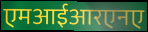
एमआईआरएनए